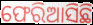
ଫେରିଆସିଛି